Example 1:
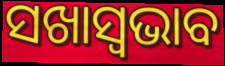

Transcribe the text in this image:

ସଖାସ୍ୱଭାବ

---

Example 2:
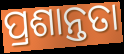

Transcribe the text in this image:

ପ୍ରଶାନ୍ତତା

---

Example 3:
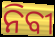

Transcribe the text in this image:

ନିବୀ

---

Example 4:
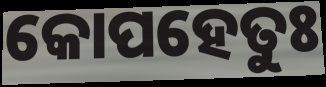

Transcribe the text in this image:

କୋପହେତୁଃ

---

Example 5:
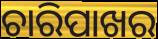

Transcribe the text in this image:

ଚାରିପାଖର